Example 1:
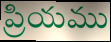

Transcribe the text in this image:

ప్రియము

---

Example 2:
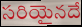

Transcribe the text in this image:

సరియైనదే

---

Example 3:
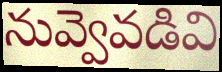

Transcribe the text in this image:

నువ్వెవడివి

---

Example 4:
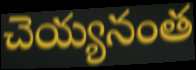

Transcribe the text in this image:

చెయ్యనంత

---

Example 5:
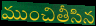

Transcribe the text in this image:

ముంచితీసిన